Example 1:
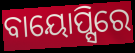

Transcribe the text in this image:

ବାୟୋପ୍ସିରେ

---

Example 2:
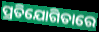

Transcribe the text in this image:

ପ୍ରତିଯୋଗିତାରେ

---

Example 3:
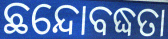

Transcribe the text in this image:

ଛନ୍ଦୋବଦ୍ଧତା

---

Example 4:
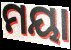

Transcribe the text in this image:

ମୟା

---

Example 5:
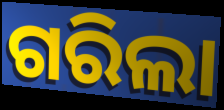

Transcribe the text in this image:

ଗରିଲା